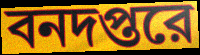
বনদপ্তরে